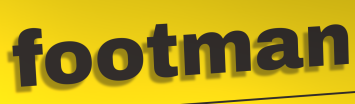
footman